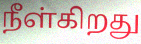
நீள்கிறது